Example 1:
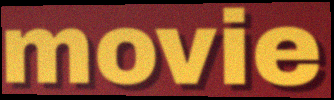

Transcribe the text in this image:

movie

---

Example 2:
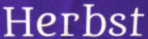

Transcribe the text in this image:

Herbst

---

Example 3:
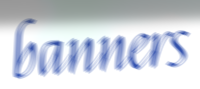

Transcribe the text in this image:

banners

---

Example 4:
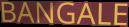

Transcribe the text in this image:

BANGALE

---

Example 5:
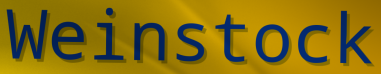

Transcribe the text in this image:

Weinstock